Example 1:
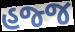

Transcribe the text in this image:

હજ્જ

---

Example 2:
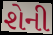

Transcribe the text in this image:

શેની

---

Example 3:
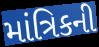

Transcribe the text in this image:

માંત્રિકની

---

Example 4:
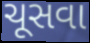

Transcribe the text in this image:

ચૂસવા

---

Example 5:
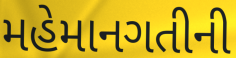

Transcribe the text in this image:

મહેમાનગતીની